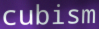
cubism